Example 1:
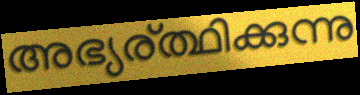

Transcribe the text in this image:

അഭ്യര്ത്ഥിക്കുന്നു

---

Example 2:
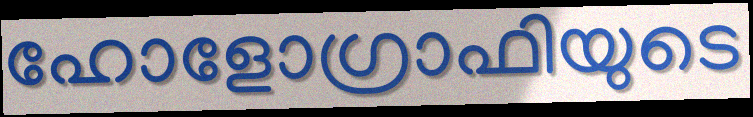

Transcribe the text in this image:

ഹോളോഗ്രാഫിയുടെ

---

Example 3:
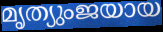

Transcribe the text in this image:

മൃത്യുംജയായ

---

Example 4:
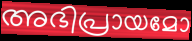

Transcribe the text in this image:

അഭിപ്രായമോ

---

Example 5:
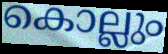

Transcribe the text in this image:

കൊല്ലും